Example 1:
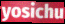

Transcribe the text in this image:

yosichu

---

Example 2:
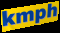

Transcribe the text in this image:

kmph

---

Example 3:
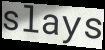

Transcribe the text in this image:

slays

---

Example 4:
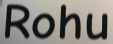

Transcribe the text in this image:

Rohu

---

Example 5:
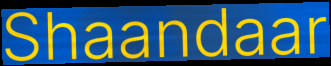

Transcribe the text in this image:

Shaandaar